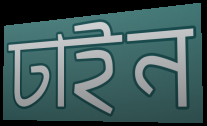
ঢাইন